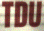
TDU